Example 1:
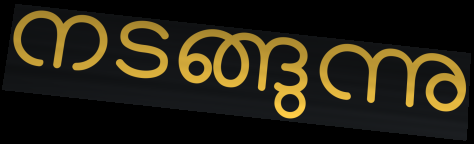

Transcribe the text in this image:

നടങ്ങുന്നു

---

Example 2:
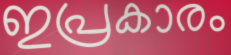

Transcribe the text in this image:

ഇപ്രകാരം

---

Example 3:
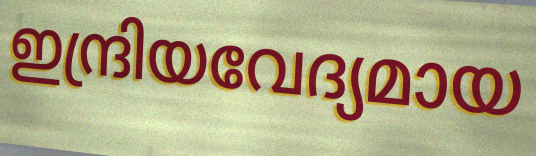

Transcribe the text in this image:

ഇന്ദ്രിയവേദ്യമായ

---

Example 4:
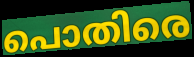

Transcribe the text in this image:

പൊതിരെ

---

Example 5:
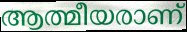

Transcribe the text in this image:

ആത്മീയരാണ്